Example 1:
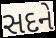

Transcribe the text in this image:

સદને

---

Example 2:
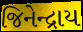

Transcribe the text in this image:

જિનેન્દ્રાય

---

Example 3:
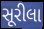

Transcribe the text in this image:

સૂરીલા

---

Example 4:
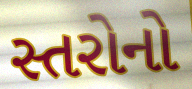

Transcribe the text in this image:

સ્તરોનો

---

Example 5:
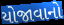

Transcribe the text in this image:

યોજાવાનો